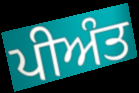
ਪੀਅੰਤ